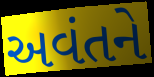
અવંતને